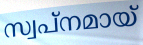
സ്വപ്നമായ്